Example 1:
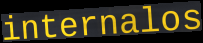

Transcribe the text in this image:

internalos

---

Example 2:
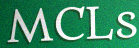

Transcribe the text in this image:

MCLs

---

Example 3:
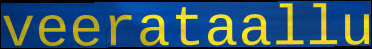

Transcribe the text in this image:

veerataallu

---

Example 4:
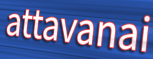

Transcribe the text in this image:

attavanai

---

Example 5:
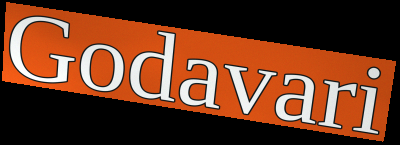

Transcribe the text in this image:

Godavari